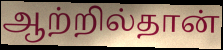
ஆற்றில்தான்